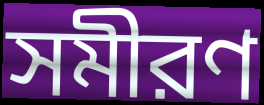
সমীরণ